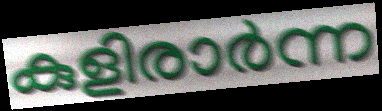
കുളിരാർന്ന